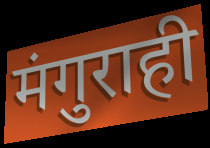
मंगुराही